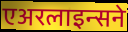
एअरलाइन्सने